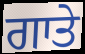
ਗਾਤੇ